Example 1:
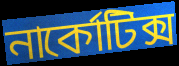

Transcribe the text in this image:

নার্কোটিক্স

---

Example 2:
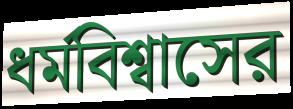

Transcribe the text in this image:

ধর্মবিশ্বাসের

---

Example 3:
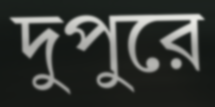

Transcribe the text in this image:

দুপুরে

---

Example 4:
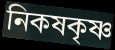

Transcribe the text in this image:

নিকষকৃষ্ণ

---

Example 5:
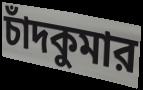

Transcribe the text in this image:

চাঁদকুমার